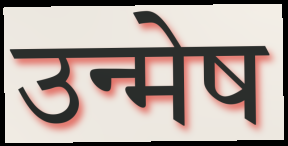
उन्मेष